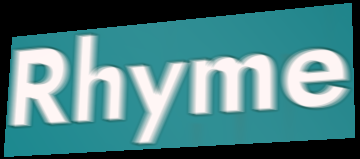
Rhyme